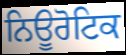
ਨਿਊਰੋਟਿਕ